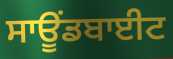
ਸਾਊਂਡਬਾਈਟ